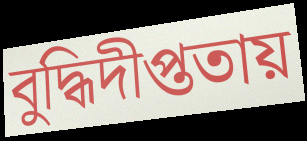
বুদ্ধিদীপ্ততায়